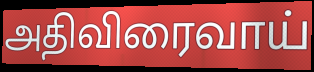
அதிவிரைவாய்